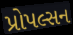
પ્રોપલ્સન